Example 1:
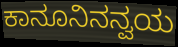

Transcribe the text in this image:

ಕಾನೂನಿನನ್ವಯ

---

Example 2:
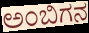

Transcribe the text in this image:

ಅಂಬಿಗನ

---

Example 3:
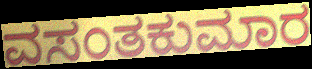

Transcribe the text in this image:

ವಸಂತಕುಮಾರ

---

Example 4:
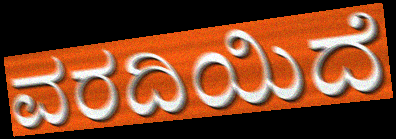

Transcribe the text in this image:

ವರದಿಯಿದೆ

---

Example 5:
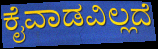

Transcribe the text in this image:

ಕೈವಾಡವಿಲ್ಲದೆ